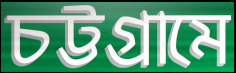
চট্টগ্রামে